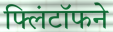
फ्लिंटॉफने